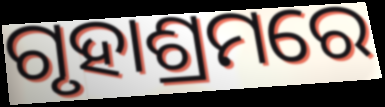
ଗୃହାଶ୍ରମରେ